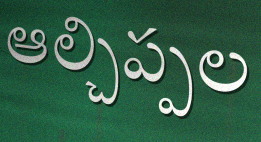
ఆల్చిప్పల